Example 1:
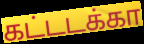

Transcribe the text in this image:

கட்டடக்கா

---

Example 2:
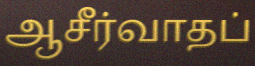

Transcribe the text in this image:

ஆசீர்வாதப்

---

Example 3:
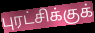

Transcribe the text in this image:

புரட்சிக்குக்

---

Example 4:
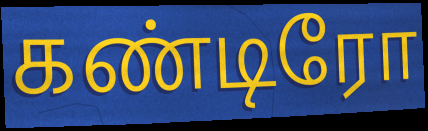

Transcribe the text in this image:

கண்டிரோ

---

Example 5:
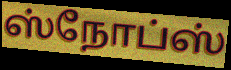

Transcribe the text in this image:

ஸ்நோப்ஸ்